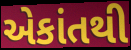
એકાંતથી